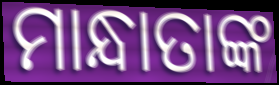
ମାନ୍ଧାତାଙ୍କ